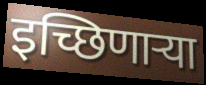
इच्छिणार्‍या